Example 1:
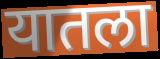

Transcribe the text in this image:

यातला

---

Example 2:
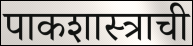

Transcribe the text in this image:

पाकशास्त्राची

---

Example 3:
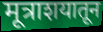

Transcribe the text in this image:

मूत्राशयातून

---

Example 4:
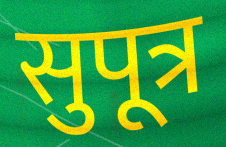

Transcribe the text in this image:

सुपूत्र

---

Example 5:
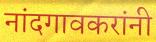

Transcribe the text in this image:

नांदगावकरांनी